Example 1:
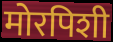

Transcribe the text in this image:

मोरपिशी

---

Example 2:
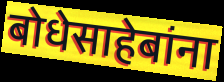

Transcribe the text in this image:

बोधेसाहेबांना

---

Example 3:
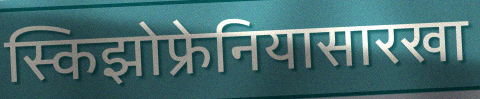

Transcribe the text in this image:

स्किझोफ्रेनियासारखा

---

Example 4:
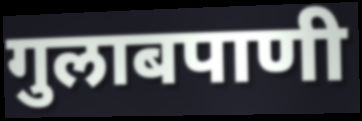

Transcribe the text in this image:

गुलाबपाणी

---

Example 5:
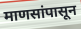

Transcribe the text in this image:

माणसांपासून